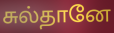
சுல்தானே